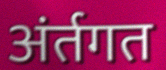
अंर्तगत